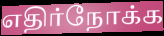
எதிர்நோக்க